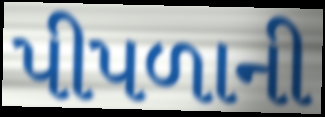
પીપળાની